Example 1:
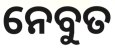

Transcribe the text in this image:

ନେବୁତ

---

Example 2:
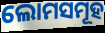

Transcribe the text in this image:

ଲୋମସମୂହ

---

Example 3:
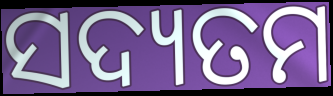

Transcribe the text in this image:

ସଦ୍ୟତମ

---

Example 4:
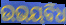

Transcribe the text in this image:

ଉଭୟବିଧ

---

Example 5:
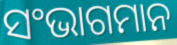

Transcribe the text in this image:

ସଂଭାଗମାନ